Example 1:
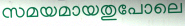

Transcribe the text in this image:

സമയമായതുപോലെ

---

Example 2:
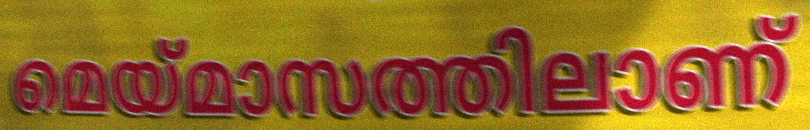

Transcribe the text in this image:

മെയ്മാസത്തിലാണ്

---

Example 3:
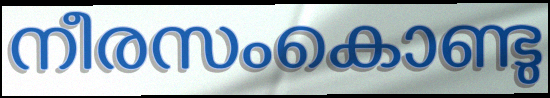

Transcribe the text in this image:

നീരസംകൊണ്ടു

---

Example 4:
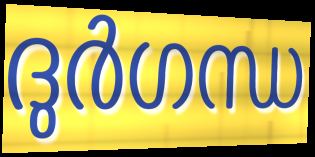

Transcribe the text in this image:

ദുർഗന്ധ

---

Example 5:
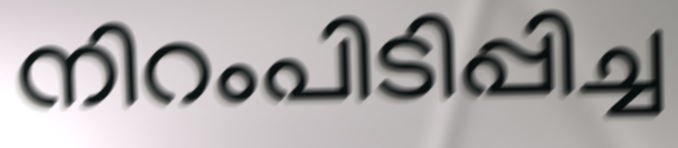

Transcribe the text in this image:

നിറംപിടിപ്പിച്ച